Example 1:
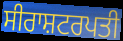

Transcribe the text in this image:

ਸੀਰਾਸ਼ਟਰਪਤੀ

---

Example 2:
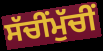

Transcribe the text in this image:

ਸੱਚੀਂਮੁੱਚੀਂ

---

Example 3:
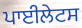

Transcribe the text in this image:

ਪਾਈਲੇਟਸ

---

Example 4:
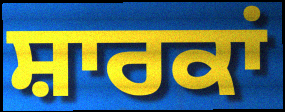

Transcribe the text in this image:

ਸ਼ਾਰਕਾਂ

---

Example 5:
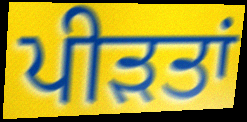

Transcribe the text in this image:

ਪੀੜਤਾਂ